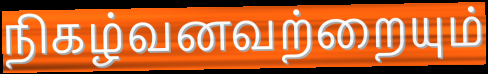
நிகழ்வனவற்றையும்